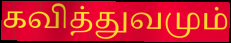
கவித்துவமும்